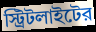
স্ট্রিটলাইটের